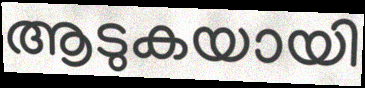
ആടുകയായി